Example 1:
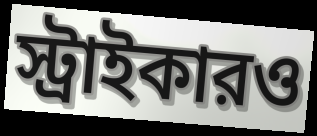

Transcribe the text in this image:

স্ট্রাইকারও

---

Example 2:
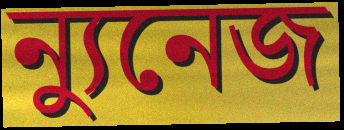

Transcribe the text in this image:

ন্যুনেজ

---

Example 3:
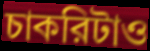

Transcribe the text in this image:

চাকরিটাও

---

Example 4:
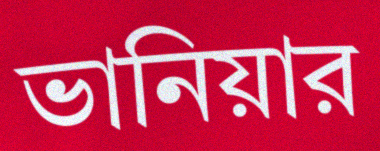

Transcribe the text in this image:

ভানিয়ার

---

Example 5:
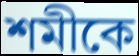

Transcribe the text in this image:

শমীকে